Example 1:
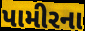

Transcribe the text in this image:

પામીરના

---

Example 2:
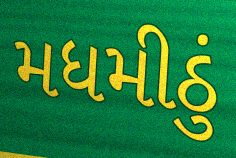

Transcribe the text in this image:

મધમીઠું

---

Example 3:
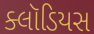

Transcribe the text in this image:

ક્લૉડિયસ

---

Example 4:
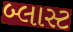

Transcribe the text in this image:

બ્લાસ્ટ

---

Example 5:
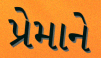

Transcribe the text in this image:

પ્રેમાને